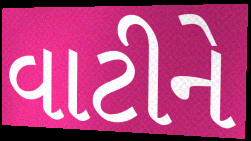
વાટીને